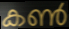
കൺ